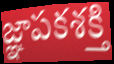
జ్ఞాపకశక్తి